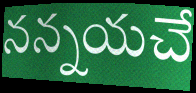
నన్నయచే